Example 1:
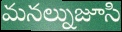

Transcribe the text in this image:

మనల్నుజూసి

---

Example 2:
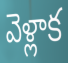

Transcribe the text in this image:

వెళ్లాక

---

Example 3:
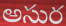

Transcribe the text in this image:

అసుర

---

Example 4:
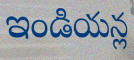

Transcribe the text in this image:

ఇండియన్ల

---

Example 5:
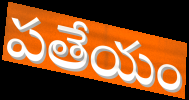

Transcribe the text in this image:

పతేయం